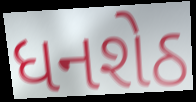
ધનશેઠ